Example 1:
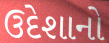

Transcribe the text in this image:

ઉદેશાનો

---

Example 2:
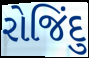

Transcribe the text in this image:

રોજિંદુ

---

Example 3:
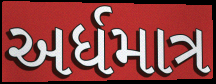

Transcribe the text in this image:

અર્ધમાત્ર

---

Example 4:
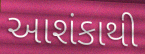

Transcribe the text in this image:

આશંકાથી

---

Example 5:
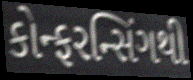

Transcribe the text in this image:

કોન્ફરન્સિંગથી